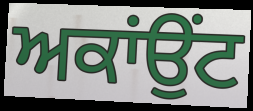
ਅਕਾਂਉਂਟ